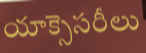
యాక్సెసరీలు